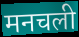
मनचली